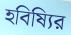
হবিষ্যির